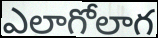
ఎలాగోలాగ